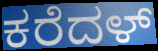
ಕರೆದಳ್